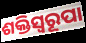
ଶକ୍ତିସ୍ବରୂପା